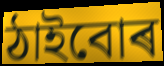
ঠাইবোৰ